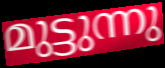
മുട്ടുന്നു